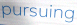
pursuing